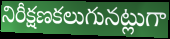
నిరీక్షణకలుగునట్లుగా